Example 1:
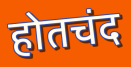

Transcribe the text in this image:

होतचंद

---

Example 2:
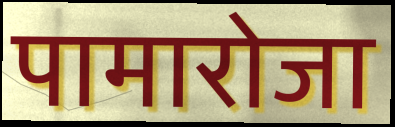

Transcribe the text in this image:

पामारोजा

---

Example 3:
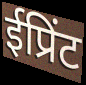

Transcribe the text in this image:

ईप्रिंट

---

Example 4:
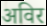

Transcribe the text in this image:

अविर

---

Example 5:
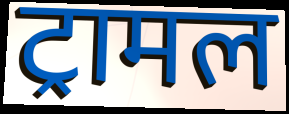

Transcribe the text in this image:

ट्रामल